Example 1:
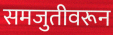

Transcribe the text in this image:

समजुतीवरून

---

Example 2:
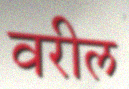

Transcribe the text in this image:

वरील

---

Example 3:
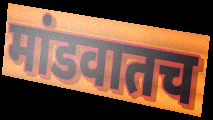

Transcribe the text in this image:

मांडवातच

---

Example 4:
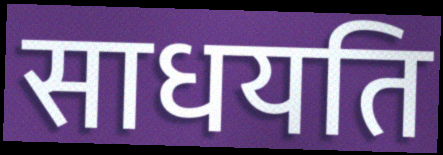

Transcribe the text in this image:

साधयति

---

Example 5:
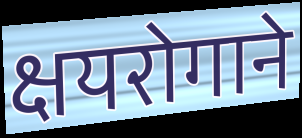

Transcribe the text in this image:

क्षयरोगाने